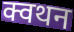
क्वथन